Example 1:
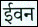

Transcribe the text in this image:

ईवन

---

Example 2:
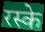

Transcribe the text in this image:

रस्के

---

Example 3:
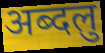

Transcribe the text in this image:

अब्दलु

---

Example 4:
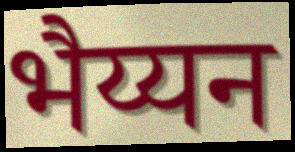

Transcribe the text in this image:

भैय्यन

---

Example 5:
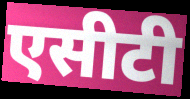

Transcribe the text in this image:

एसीटी